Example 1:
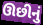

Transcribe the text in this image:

ઊછીનું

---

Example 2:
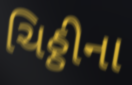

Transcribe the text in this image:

ચિઠ્ઠીના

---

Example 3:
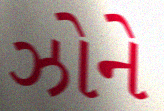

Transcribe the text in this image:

ઝોને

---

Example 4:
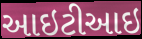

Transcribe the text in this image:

આઇટીઆઇ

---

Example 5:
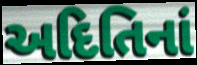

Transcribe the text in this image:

અદિતિનાં